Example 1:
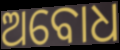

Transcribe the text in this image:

ଅବୋଧ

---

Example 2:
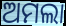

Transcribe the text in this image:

ଅମଲା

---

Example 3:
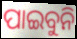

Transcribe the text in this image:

ପାଇବୁନି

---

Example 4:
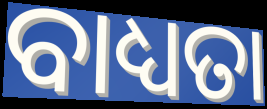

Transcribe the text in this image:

ବାଧ୍ୟତା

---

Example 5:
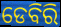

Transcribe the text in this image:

ଡେବିରି